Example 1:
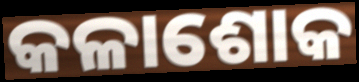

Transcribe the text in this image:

କଳାଶୋକ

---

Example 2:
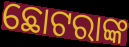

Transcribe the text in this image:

ଛୋଟରାଙ୍କ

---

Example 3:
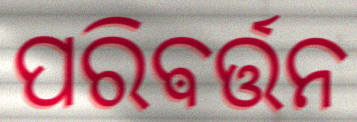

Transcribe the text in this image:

ପରିଵର୍ତ୍ତନ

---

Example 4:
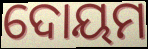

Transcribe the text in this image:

ଦୋୟମ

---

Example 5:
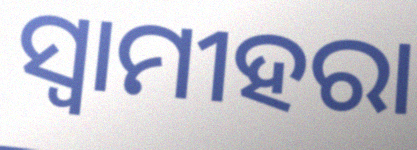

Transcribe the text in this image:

ସ୍ଵାମୀହରା